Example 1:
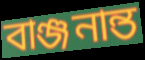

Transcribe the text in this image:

বাঞ্জনান্ত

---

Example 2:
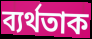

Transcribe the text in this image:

ব্যৰ্থতাক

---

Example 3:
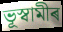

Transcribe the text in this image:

ভূস্বামীৰ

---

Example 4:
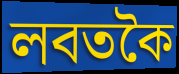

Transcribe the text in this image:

লবতকৈ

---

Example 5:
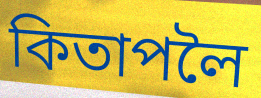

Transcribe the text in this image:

কিতাপলৈ